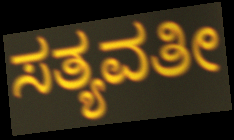
ಸತ್ಯವತೀ